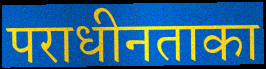
पराधीनताका